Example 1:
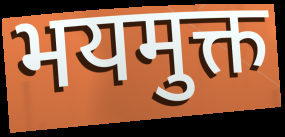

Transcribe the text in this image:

भयमुक्त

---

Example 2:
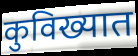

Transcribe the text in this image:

कुविख्यात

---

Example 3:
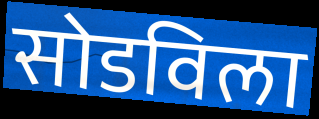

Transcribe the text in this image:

सोडविला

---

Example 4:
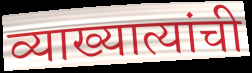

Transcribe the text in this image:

व्याख्यात्यांची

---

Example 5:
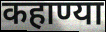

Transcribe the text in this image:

कहाण्या